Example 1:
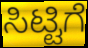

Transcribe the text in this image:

ಸಿಟ್ಟಿಗೆ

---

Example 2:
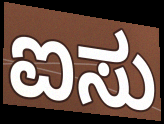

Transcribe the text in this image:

ಐಸು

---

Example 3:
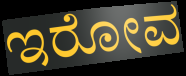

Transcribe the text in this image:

ಇರೋವ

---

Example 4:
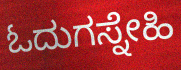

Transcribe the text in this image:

ಓದುಗಸ್ನೇಹಿ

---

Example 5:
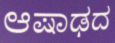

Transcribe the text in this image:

ಆಷಾಢದ